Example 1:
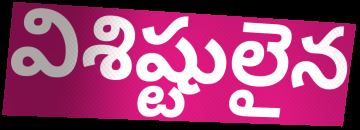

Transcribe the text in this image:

విశిష్టులైన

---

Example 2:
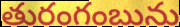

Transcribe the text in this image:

తురంగంబును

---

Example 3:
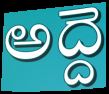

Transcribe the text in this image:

అద్దె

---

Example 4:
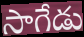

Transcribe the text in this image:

సాగేడు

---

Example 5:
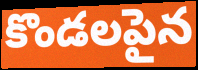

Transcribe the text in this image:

కొండలపైన